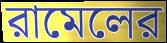
রামেলের